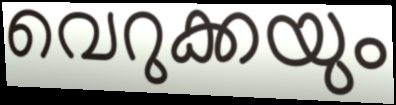
വെറുക്കയും